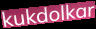
kukdolkar